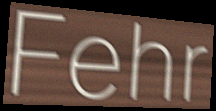
Fehr